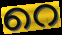
റെ